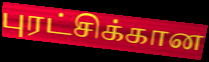
புரட்சிக்கான